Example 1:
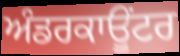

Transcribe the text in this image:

ਅੰਡਰਕਾਊਂਟਰ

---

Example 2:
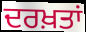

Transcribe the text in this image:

ਦਰਖ਼ਤਾਂ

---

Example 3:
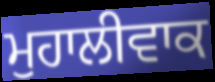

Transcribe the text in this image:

ਮੁਹਾਲੀਵਾਕ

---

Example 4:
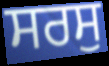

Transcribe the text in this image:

ਸਰਸੁ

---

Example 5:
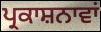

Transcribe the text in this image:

ਪ੍ਰਕਾਸ਼ਨਾਵਾਂ